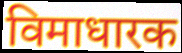
विमाधारक